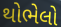
થોભેલો